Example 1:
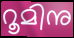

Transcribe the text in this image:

റൂമിനു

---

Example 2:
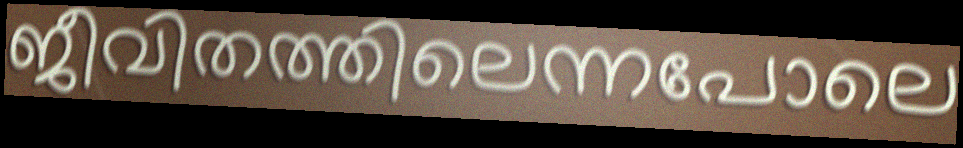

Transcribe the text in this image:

ജീവിതത്തിലെന്നപോലെ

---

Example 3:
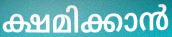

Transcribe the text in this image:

ക്ഷമിക്കാൻ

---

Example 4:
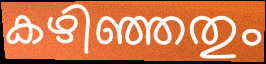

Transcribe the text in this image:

കഴിഞ്ഞതും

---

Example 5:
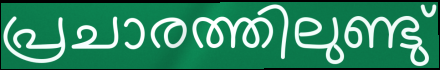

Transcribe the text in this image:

പ്രചാരത്തിലുണ്ടു്